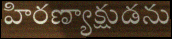
హిరణ్యాక్షుడను